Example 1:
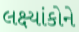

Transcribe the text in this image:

લક્ષ્યાંકોને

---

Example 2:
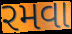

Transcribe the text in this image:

રમવા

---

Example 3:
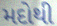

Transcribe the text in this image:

મદોથી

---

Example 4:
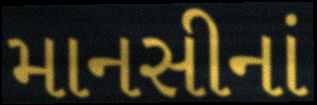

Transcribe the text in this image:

માનસીનાં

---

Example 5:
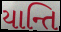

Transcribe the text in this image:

યાન્તિ